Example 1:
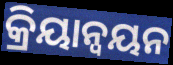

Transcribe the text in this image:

କ୍ରିୟାନ୍ଵୟନ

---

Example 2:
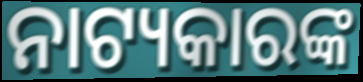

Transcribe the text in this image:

ନାଟ୍ୟକାରଙ୍କ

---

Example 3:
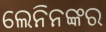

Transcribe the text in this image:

ଲେନିନଙ୍କର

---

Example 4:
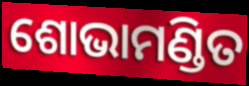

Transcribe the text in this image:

ଶୋଭାମଣ୍ଡିତ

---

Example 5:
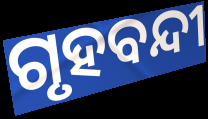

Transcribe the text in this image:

ଗୃହବନ୍ଦୀ